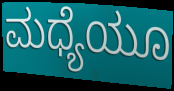
ಮಧ್ಯೆಯೂ